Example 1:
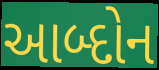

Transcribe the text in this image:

આબ્દોન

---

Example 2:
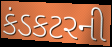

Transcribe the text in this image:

કંડકટરની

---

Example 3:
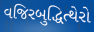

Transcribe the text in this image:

વજિરબુદ્ધિત્થેરો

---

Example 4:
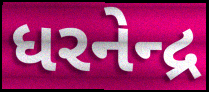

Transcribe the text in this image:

ધરનેન્દ્ર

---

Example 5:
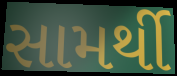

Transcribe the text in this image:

સામર્થી